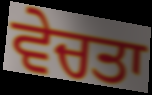
ਵੇਚਤਾ